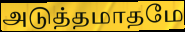
அடுத்தமாதமே